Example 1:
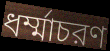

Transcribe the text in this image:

ধর্ম্মাচরণ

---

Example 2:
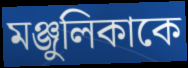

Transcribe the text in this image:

মঞ্জুলিকাকে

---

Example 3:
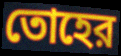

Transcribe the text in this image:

তোহের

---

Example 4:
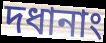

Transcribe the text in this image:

দধানাং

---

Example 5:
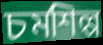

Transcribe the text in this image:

চর্মশিল্প